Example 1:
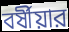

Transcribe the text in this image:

বর্ষীয়ার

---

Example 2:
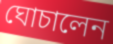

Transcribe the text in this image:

ঘোচালেন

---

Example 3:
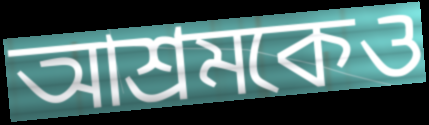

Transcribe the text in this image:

আশ্রমকেও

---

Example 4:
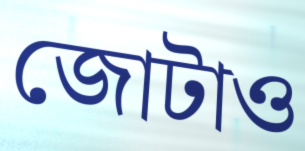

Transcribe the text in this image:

জোটাও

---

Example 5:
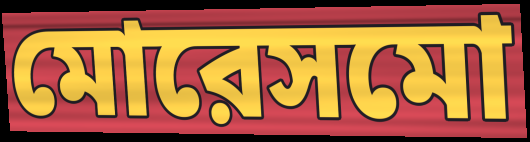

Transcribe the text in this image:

মোরেসমো